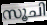
സൂചി